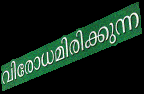
വിരോധമിരിക്കുന്ന